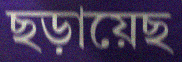
ছড়ায়েছ